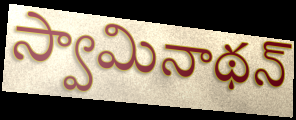
స్వామినాథన్